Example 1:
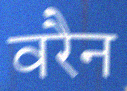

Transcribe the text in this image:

वरैन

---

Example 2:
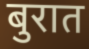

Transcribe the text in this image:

बुरात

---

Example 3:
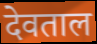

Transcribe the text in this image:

देवताल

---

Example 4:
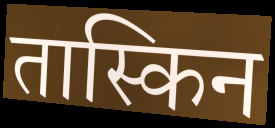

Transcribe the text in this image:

तास्किन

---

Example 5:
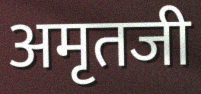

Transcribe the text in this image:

अमृतजी